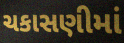
ચકાસણીમાં